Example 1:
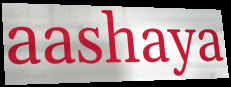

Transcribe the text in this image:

aashaya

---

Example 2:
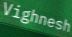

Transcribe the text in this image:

Vighnesh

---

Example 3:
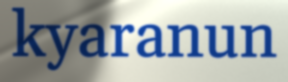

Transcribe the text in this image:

kyaranun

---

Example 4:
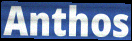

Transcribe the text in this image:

Anthos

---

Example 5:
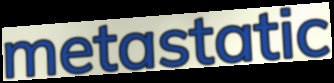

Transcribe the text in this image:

metastatic